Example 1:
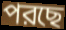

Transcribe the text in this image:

পরছে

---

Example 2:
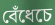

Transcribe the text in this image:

বেঁধেচে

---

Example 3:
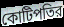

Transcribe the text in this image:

কোটিপতির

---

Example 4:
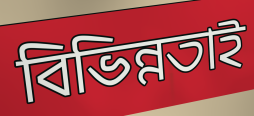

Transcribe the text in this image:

বিভিন্নতাই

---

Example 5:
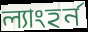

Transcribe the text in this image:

ল্যাংহর্ন